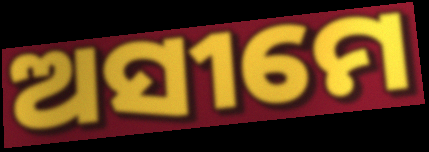
ଅସୀମେ